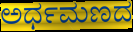
ಅರ್ಧಮಣದ